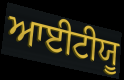
ਆਈਟੀਯੂ